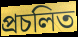
প্ৰচলিত